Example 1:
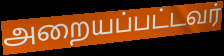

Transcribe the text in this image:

அறையப்பட்டவர்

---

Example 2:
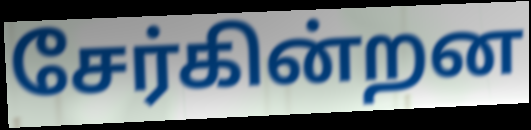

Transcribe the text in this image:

சேர்கின்றன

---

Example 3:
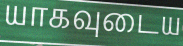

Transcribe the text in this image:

யாகவுடைய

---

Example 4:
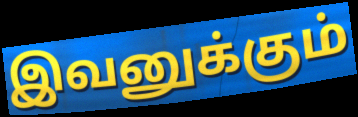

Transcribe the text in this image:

இவனுக்கும்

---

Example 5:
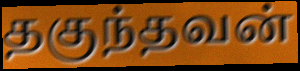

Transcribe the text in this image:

தகுந்தவன்